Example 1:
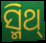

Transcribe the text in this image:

ସ୍ମିଥ୍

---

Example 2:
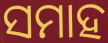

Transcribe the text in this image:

ସମାହ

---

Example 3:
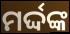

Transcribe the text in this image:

ମର୍ଦ୍ଦଙ୍କ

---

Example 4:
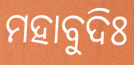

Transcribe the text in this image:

ମହାବୁଦିଃ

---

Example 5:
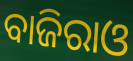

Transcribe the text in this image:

ବାଜିରାଓ